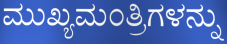
ಮುಖ್ಯಮಂತ್ರಿಗಳನ್ನು